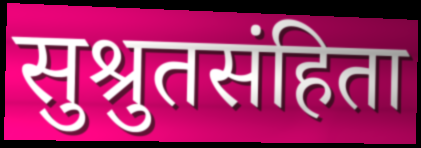
सुश्रुतसंहिता